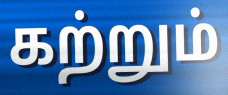
கற்றும்